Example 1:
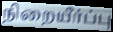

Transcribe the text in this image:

நிறையீர்ப்பு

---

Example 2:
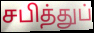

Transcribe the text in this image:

சபித்துப்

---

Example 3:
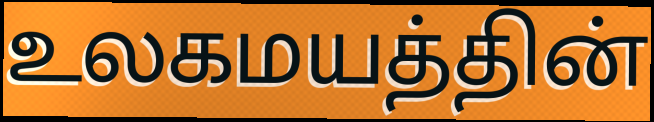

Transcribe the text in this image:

உலகமயத்தின்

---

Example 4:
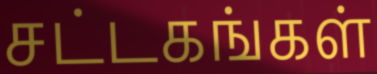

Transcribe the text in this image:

சட்டகங்கள்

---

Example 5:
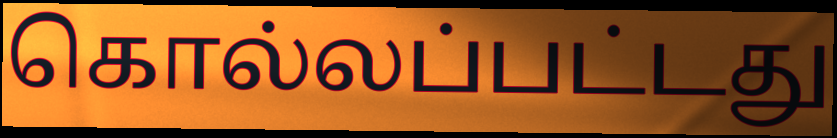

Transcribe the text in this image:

கொல்லப்பட்டது